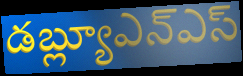
డబ్ల్యూఎన్ఎస్